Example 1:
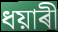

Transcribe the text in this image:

ধয়াৰী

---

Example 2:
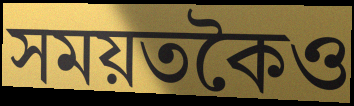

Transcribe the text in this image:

সময়তকৈও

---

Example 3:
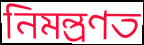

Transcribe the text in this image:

নিমন্ত্ৰণত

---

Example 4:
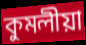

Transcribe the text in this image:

কুমলীয়া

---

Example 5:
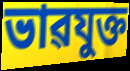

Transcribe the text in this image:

ভাৱযুক্ত